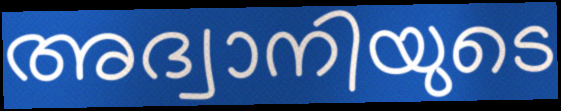
അദ്വാനിയുടെ